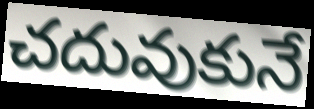
చదువుకునే